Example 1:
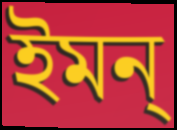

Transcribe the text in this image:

ইমন্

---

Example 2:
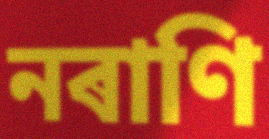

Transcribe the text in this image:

নৰাণি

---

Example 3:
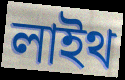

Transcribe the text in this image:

লাইথ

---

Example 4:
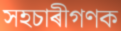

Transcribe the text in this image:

সহচাৰীগণক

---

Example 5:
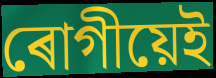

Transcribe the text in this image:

ৰোগীয়েই